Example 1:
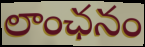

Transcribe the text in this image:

లాంఛనం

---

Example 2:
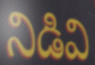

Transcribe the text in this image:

నిడివి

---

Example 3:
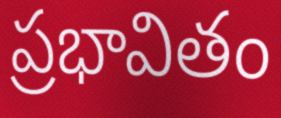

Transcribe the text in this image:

ప్రభావితం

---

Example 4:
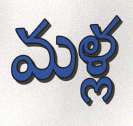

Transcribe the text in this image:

మళ్ల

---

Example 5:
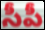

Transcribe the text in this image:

సీపీ